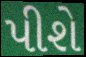
પીશે